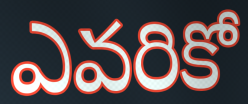
ఎవరికో